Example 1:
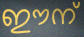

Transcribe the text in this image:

ഈന്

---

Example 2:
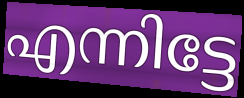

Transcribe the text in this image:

എന്നിട്ടേ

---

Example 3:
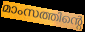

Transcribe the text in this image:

മാംസത്തിന്റെ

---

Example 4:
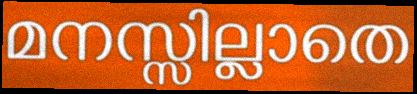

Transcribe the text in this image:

മനസ്സില്ലാതെ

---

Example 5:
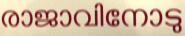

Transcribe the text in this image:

രാജാവിനോടു